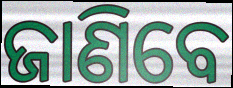
ଜାଣିବେ